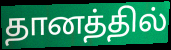
தானத்தில்